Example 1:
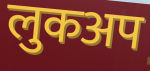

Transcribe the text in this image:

लुकअप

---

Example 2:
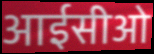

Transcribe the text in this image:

आईसीओ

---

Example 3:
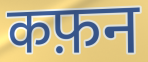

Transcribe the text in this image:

कफ़न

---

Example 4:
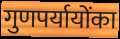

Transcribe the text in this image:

गुणपर्यायोंका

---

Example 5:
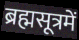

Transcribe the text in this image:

ब्रह्मसूत्रमें